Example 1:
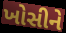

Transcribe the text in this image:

ખોસીને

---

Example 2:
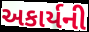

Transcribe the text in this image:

અકાર્યની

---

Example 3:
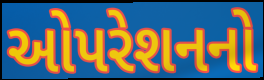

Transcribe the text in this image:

ઓપરેશનનો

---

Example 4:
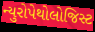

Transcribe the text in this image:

ન્યુરોપેથોલોજિસ્ટ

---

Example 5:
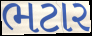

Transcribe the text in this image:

ભટાર